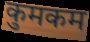
कुमकम